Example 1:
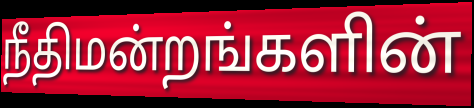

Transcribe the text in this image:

நீதிமன்றங்களின்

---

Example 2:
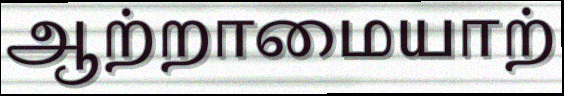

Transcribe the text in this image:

ஆற்றாமையாற்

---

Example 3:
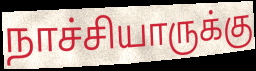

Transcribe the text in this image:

நாச்சியாருக்கு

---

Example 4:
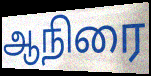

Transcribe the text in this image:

ஆநிரை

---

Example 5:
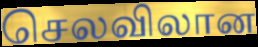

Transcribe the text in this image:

செலவிலான